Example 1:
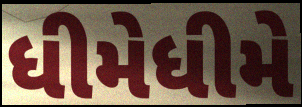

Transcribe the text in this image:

ધીમેધીમે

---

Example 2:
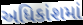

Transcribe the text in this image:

અધિકાંશમાં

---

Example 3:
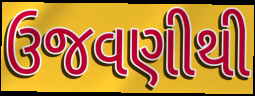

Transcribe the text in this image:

ઉજવણીથી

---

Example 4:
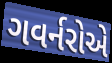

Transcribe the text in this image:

ગવર્નરોએ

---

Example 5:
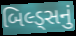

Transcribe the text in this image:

બિલ્ડ્સનું